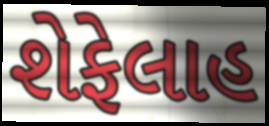
શેફેલાહ